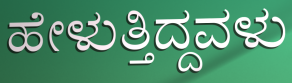
ಹೇಳುತ್ತಿದ್ದವಳು